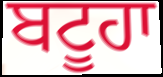
ਬਟੂਹਾ